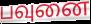
பவுனை